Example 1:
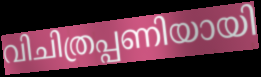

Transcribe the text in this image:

വിചിത്രപ്പണിയായി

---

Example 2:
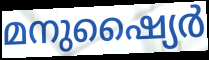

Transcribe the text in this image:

മനുഷ്യൈർ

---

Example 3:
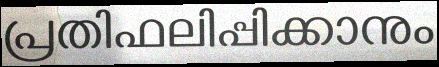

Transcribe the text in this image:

പ്രതിഫലിപ്പിക്കാനും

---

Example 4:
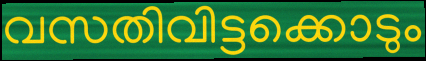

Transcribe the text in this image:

വസതിവിട്ടക്കൊടും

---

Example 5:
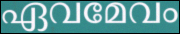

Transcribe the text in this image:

ഏവമേവം